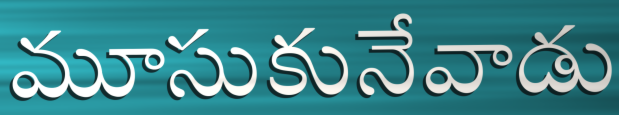
మూసుకునేవాడు